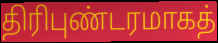
திரிபுண்டரமாகத்